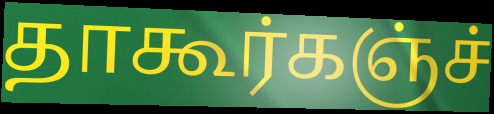
தாகூர்கஞ்ச்